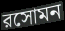
রসোমন